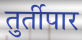
तुर्तीपार